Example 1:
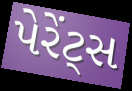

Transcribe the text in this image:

પેરેંટ્સ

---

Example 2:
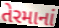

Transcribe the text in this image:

તેરમાનાં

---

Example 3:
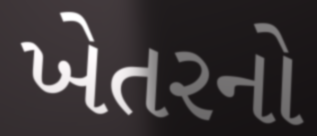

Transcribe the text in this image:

ખેતરનો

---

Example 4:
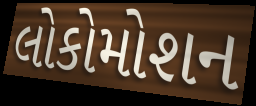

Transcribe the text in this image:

લોકોમોશન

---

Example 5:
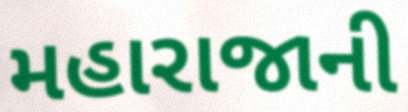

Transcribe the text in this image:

મહારાજાની